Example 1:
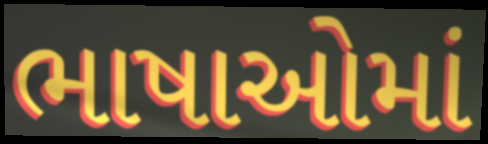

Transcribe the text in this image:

ભાષાઓમાં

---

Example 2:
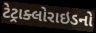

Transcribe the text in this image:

ટેટ્રાક્લોરાઇડનો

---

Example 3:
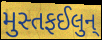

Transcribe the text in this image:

મુસ્તફઈલુન્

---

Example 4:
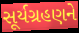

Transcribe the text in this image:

સૂર્યગ્રહણને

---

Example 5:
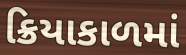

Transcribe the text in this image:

ક્રિયાકાળમાં